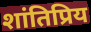
शांतिप्रिय